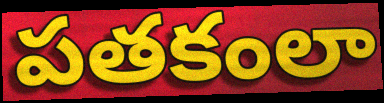
పతకంలా